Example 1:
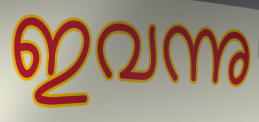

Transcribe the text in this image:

ഇവന്നു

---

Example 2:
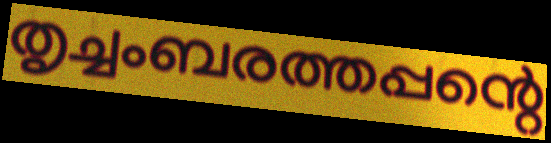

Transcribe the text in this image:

തൃച്ചംബരത്തപ്പന്റെ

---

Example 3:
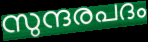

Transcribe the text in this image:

സുന്ദരപദം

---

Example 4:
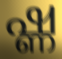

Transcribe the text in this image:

ഷ്ണ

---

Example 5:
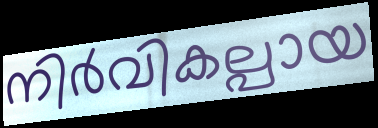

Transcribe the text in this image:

നിർവികല്പായ